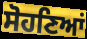
ਸੋਹਣਿਆਂ